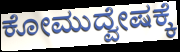
ಕೋಮುದ್ವೇಷಕ್ಕೆ